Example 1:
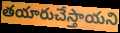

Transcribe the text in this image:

తయారుచేస్తాయని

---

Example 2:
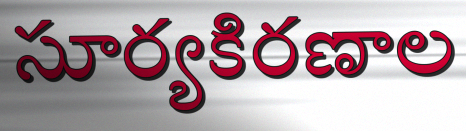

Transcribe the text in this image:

సూర్యకిరణాల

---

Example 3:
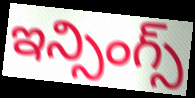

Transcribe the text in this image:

ఇన్సింగ్స్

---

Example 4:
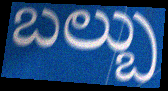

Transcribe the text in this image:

బల్బు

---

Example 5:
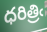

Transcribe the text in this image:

ధరిత్రిఁ